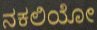
ನಕಲಿಯೋ